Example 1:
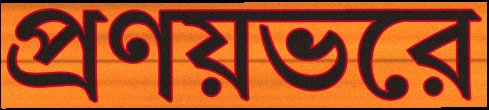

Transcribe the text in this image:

প্রণয়ভরে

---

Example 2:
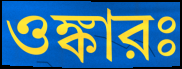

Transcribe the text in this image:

ওঙ্কারঃ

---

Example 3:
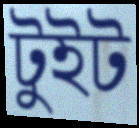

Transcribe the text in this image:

টুইট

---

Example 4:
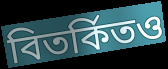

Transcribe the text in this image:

বিতর্কিতও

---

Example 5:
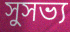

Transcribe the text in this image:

সুসভ্য